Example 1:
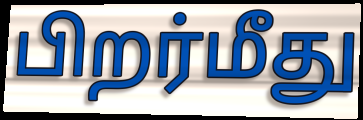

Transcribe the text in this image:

பிறர்மீது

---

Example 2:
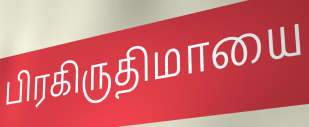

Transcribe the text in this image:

பிரகிருதிமாயை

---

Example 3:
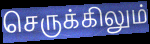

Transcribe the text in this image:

செருக்கிலும்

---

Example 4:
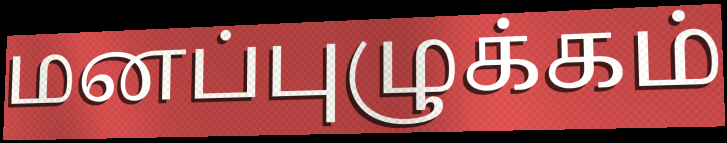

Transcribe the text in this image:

மனப்புழுக்கம்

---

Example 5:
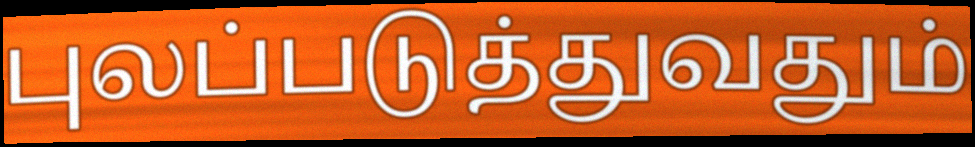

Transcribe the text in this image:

புலப்படுத்துவதும்